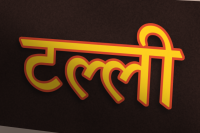
टल्ली